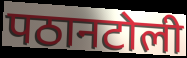
पठानटोली